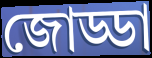
জোড্ডা